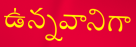
ఉన్నవానిగా